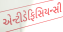
એન્ટીડેફિસિયન્સી